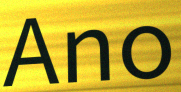
Ano